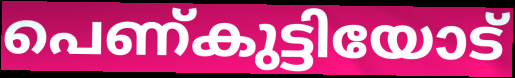
പെണ്കുട്ടിയോട്